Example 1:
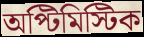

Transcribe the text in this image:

অপ্টিমিস্টিক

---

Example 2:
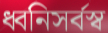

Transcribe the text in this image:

ধ্বনিসর্বস্ব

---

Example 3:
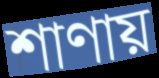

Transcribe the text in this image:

শাণায়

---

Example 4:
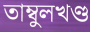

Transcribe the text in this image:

তাম্বুলখণ্ড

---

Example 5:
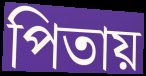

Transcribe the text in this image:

পিতায়